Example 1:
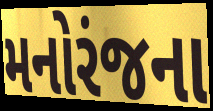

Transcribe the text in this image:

મનોરંજના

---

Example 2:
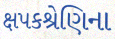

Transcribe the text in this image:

ક્ષપકશ્રેણિના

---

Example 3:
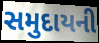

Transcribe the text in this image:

સમુદાયની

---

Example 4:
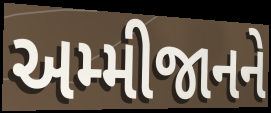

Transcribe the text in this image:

અમ્મીજાનને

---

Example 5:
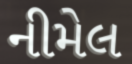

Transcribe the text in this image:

નીમેલ